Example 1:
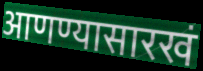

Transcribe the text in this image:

आणण्यासारखं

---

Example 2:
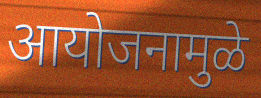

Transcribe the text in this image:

आयोजनामुळे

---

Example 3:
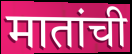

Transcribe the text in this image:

मातांची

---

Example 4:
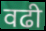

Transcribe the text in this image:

वढी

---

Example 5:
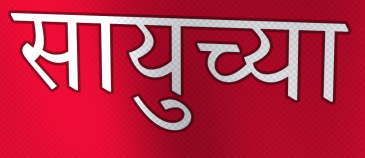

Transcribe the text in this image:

सायुच्या